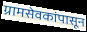
ग्रामसेवकांपासून